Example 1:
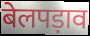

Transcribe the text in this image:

बेलपड़ाव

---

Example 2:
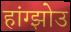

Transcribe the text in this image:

हांग्झोउ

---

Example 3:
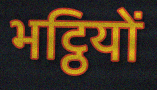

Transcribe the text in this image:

भट्ठियों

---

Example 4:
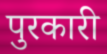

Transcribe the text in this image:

पुरकारी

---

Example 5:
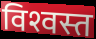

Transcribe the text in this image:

विश्वस्त